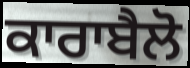
ਕਾਰਾਬੈਲੋ